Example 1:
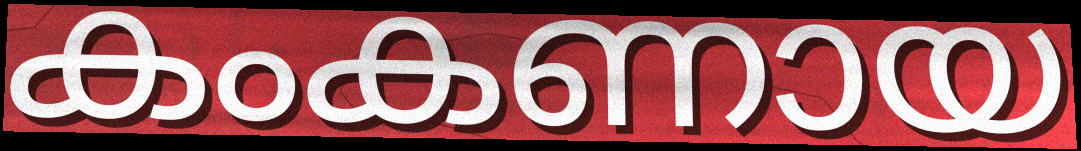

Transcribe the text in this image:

കംകണായ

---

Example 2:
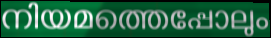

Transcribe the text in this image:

നിയമത്തെപ്പോലും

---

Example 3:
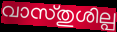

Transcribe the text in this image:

വാസ്തുശില്പ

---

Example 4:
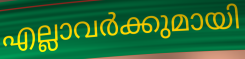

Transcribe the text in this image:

എല്ലാവർക്കുമായി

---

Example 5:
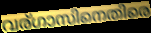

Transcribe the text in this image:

വര്ഗാസിനെതിരെ